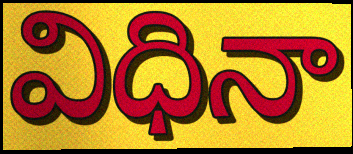
విధినా